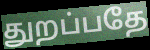
துறப்பதே